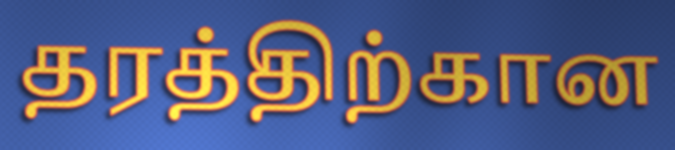
தரத்திற்கான